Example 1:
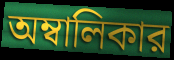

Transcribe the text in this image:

অম্বালিকার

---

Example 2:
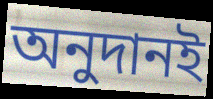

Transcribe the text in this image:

অনুদানই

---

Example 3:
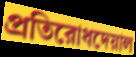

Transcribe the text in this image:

প্রতিরোধদেয়াল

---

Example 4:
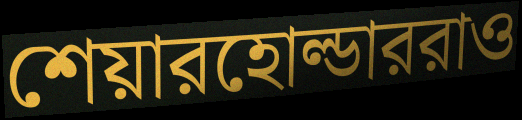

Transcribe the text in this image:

শেয়ারহোল্ডাররাও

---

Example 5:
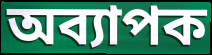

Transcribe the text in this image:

অব্যাপক